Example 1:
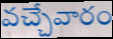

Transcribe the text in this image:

వచ్చేవారం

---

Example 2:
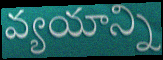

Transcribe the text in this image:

వ్యయాన్ని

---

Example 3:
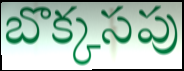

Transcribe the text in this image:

బొక్కసపు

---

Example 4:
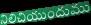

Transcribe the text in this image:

నిలిచియుందుము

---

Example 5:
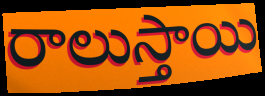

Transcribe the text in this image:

రాలుస్తాయి